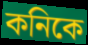
কনিকে